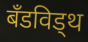
बँडविड्थ